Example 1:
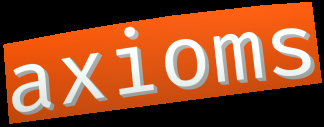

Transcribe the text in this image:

axioms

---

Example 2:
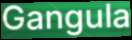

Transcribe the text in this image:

Gangula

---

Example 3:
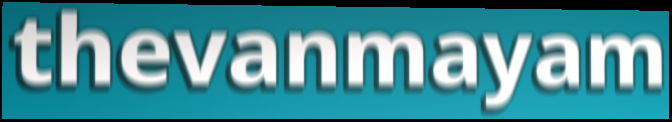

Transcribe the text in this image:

thevanmayam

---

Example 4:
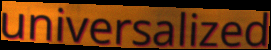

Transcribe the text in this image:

universalized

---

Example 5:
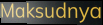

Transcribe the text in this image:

Maksudnya